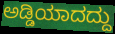
ಅಡ್ಡಿಯಾದದ್ದು